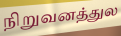
நிறுவனத்துல